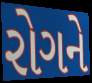
રોગને